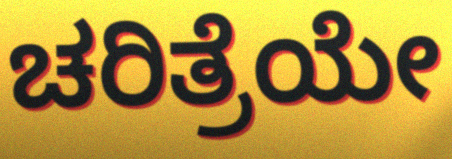
ಚರಿತ್ರೆಯೇ